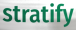
stratify